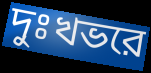
দুঃখভরে